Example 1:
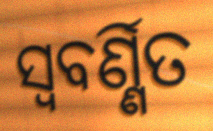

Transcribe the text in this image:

ସ୍ୱବର୍ଣ୍ଣିତ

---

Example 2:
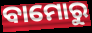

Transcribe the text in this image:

ବାମୋରୁ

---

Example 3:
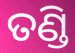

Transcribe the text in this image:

ତଣ୍ଡି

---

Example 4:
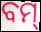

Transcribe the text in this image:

ବମ୍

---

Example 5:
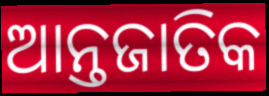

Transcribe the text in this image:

ଆନ୍ତଜାତିକ